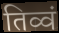
तिव्वं